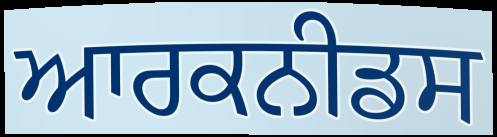
ਆਰਕਨੀਡਸ